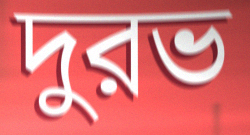
দুরভ